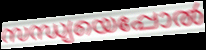
സന്ധ്യയെപ്പോൽ